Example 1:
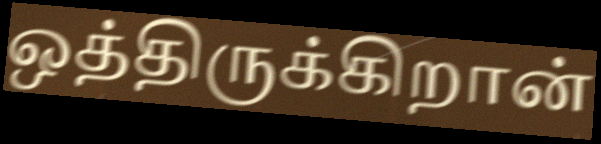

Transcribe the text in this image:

ஒத்திருக்கிறான்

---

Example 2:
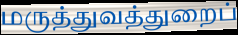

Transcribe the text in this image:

மருத்துவத்துறைப்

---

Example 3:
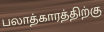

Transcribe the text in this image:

பலாத்காரத்திற்கு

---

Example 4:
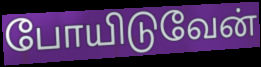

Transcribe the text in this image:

போயிடுவேன்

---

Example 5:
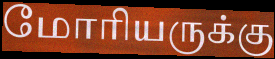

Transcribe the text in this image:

மோரியருக்கு